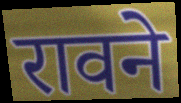
रावने